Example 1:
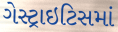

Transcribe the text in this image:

ગેસ્ટ્રાઇટિસમાં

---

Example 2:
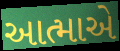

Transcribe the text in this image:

આત્માએ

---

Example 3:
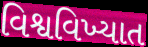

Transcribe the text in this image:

વિશ્વવિખ્યાત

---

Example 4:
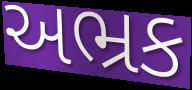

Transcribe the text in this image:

અભ્રક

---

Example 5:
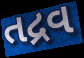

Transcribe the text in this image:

તદ્રવ